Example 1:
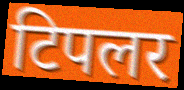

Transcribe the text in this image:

टिपलर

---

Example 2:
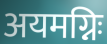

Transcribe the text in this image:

अयमग्निः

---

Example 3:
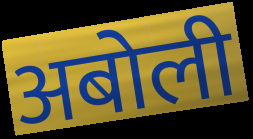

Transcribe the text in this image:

अबोली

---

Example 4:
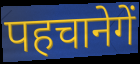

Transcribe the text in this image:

पहचानेगें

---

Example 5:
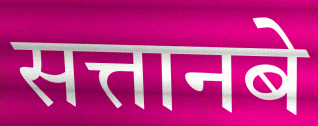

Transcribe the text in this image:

सत्तानबे